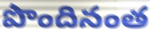
పొందినంత